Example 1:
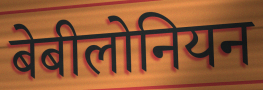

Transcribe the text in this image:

बेबीलोनियन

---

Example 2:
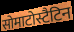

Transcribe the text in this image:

सोमाटोस्टैटिन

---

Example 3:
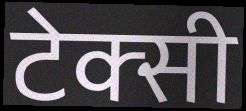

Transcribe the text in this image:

टेक्‍सी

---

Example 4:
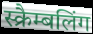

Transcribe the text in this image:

स्क्रैम्बलिंग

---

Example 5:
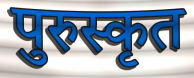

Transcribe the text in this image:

पुरुस्कृत